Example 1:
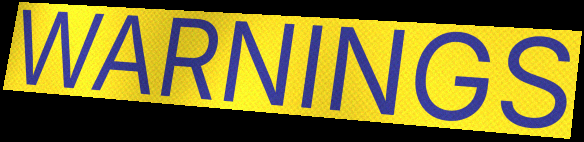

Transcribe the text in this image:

WARNINGS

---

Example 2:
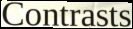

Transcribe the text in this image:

Contrasts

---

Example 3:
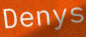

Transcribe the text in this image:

Denys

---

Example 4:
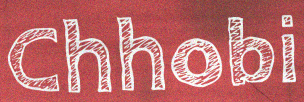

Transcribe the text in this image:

Chhobi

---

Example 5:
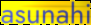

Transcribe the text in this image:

asunahi